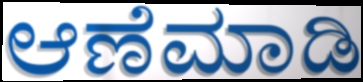
ಆಣೆಮಾಡಿ